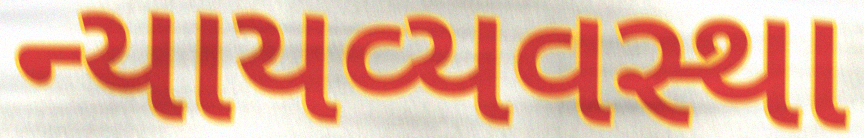
ન્યાયવ્યવસ્થા